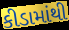
કીડામાંથી